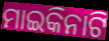
ମାଇକିନାଟି